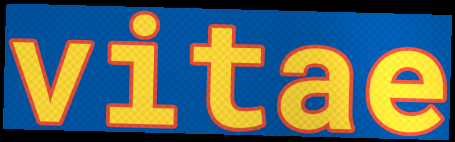
vitae